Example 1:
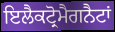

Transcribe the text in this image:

ਇਲੈਕਟ੍ਰੋਮੈਗਨੈਟਾਂ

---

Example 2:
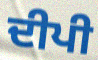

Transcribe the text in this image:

ਦੀਪੀ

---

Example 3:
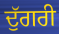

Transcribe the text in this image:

ਦੁੱਗਰੀ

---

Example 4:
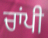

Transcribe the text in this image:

ਚਾਂਪੀ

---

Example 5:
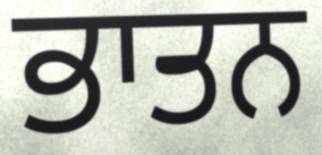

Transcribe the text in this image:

ਭਾਤਨ